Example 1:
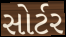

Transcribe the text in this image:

સોર્ટર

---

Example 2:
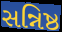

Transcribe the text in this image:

સન્નિષ્ઠ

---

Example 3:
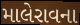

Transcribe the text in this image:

માલેરાવના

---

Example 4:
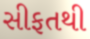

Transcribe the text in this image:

સીફતથી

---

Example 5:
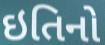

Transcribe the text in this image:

ઇતિનો